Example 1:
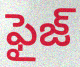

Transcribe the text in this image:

ఫైజ్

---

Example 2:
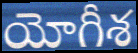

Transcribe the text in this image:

యోగీశ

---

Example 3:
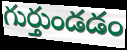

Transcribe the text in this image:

గుర్తుండడం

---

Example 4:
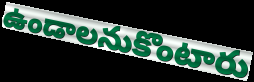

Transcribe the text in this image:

ఉండాలనుకొంటారు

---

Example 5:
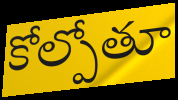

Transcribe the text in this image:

కోల్పోతూ